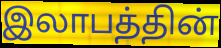
இலாபத்தின்